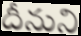
దీనుని